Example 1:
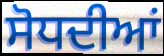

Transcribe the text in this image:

ਸੋਧਦੀਆਂ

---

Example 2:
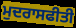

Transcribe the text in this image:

ਮੁਦਰਾਸਫੀਤੀ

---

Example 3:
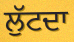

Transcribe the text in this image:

ਲੁੱਟਦਾ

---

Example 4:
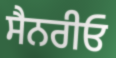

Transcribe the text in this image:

ਸੈਨਰੀਓ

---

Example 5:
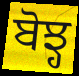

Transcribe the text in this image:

ਬੋਝ੍ਹ